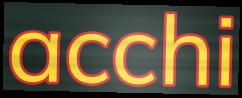
acchi